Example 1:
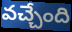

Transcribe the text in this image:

వచ్చేంది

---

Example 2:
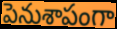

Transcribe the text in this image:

పెనుశాపంగా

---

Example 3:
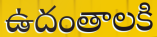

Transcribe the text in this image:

ఉదంతాలకి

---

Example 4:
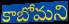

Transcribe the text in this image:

కాబోమని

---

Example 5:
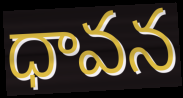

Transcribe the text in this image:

ధావన